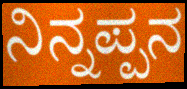
ನಿನ್ನಪ್ಪನ